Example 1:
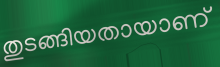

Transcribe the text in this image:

തുടങ്ങിയതായാണ്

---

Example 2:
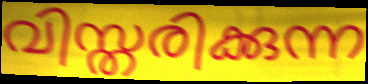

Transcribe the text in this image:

വിസ്തരിക്കുന്ന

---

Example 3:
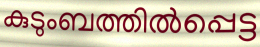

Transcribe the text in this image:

കുടുംബത്തിൽപ്പെട്ട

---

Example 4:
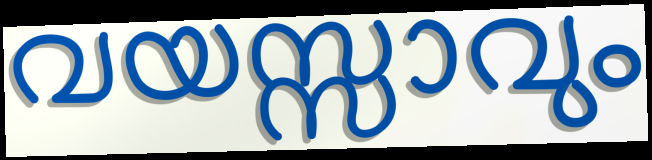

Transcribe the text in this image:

വയസ്സാവും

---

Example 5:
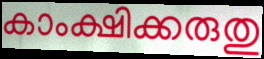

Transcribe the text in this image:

കാംക്ഷിക്കരുതു